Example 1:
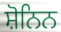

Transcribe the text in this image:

ਸ਼ੋਨਿਨ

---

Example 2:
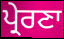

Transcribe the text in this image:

ਪ੍ਰੇਰਣਾ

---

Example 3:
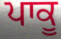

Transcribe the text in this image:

ਪਾਕੂ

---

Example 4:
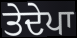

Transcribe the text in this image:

ਤੇਦੇਪਾ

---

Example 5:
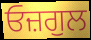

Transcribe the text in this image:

ਓਜ਼ਗੁਲ